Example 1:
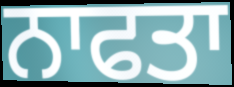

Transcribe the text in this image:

ਨਾਫਤਾ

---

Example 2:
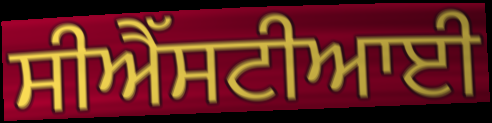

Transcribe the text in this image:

ਸੀਐੱਸਟੀਆਈ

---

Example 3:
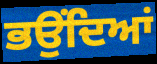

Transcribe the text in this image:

ਭਉਂਦਿਆਂ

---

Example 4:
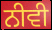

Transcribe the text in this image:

ਨੀਵੀ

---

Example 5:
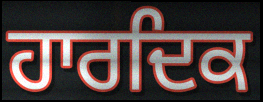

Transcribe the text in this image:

ਹਾਰਦਿਕ